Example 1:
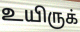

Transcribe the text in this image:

உயிருக்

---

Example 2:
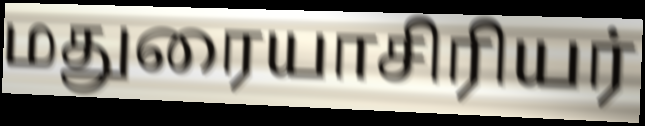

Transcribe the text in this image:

மதுரையாசிரியர்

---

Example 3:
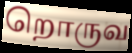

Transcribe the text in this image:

றொருவ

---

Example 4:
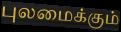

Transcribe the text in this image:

புலமைக்கும்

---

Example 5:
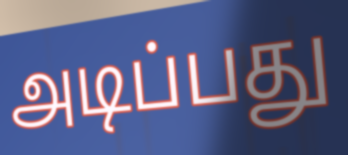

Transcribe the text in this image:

அடிப்பது